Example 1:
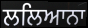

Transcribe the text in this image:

ਲਲਿਆਨਾ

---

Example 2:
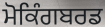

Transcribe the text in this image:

ਮੋਕਿੰਗਬਰਡ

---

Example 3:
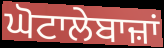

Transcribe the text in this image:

ਘੋਟਾਲੇਬਾਜ਼ਾਂ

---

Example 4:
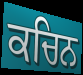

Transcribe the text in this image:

ਕਚਿਨ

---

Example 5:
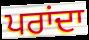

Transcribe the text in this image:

ਪਰਾਂਦਾ